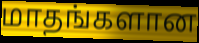
மாதங்களான